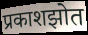
प्रकाशझोत